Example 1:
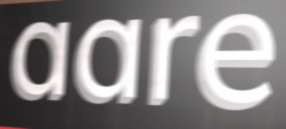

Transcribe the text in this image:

aare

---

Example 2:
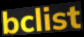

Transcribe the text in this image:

bclist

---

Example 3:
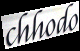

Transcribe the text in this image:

chhodo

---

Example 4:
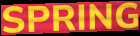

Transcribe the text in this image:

SPRING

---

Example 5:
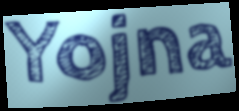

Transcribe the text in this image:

Yojna